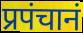
प्रपंचानं